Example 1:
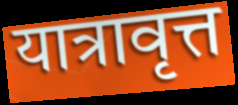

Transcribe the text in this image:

यात्रावृत्त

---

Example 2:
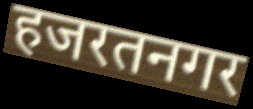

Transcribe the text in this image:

हजरतनगर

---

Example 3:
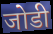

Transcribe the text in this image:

जोडी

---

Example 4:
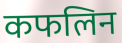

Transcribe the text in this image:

कफलिन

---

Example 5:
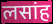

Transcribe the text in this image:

लसांह